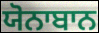
ਯੋਨਾਬਾਨ